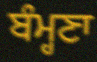
ਬੰਮ੍ਹਣਾ